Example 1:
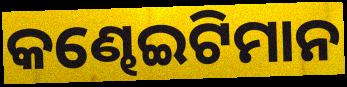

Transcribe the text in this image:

କଣ୍ଢେଇଟିମାନ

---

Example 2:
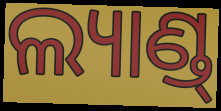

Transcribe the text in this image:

ଲ୍ୟାଣ୍ଡ୍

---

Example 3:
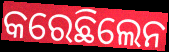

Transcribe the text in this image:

କରେଛିଲେନ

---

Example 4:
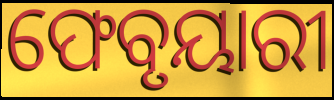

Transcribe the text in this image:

ଫେବୃୟାରୀ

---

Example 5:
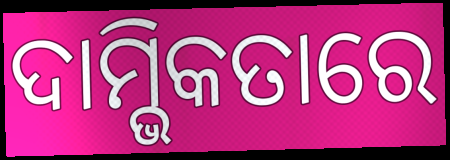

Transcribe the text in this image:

ଦାମ୍ଭିକତାରେ